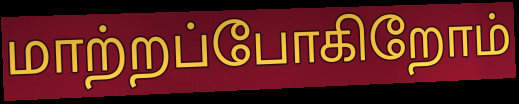
மாற்றப்போகிறோம்